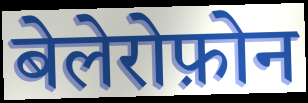
बेलेरोफ़ोन